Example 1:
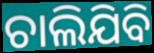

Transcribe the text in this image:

ଚାଲିଯିବି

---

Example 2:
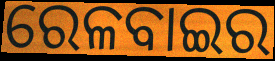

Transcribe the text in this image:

ରେଳବାଇର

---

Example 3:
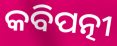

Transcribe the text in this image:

କବିପତ୍ନୀ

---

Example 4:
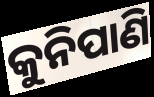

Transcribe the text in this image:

କୁନିପାଣି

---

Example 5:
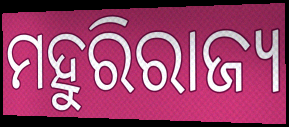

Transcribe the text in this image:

ମହୁରିରାଜ୍ୟ